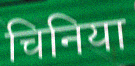
चिनिया